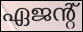
ഏജന്റ്